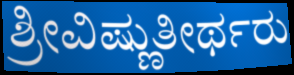
ಶ್ರೀವಿಷ್ಣುತೀರ್ಥರು